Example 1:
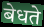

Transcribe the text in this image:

बेधते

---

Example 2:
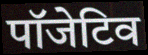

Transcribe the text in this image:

पॉजेटिव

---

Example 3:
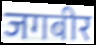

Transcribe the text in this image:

जगबीर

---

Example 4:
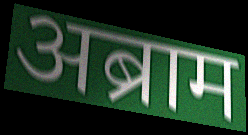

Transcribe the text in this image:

अब्राम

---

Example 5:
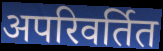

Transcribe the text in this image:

अपरिवर्तित